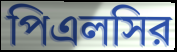
পিএলসির